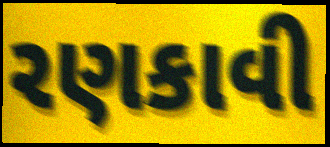
રણકાવી